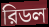
রিডল